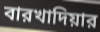
বারখাদিয়ার